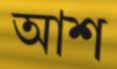
আশ